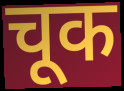
चूक